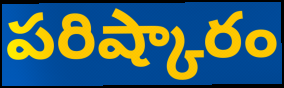
పరిష్కారం